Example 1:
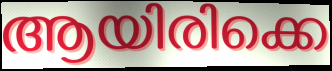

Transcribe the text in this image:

ആയിരിക്കെ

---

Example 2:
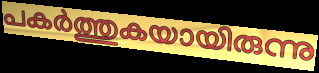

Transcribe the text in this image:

പകർത്തുകയായിരുന്നു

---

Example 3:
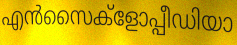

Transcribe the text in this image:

എൻസൈക്ളോപ്പീഡിയാ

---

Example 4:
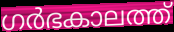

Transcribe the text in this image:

ഗർഭകാലത്ത്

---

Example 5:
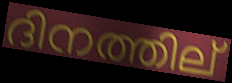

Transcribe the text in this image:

ദിനത്തില്